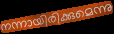
നന്നായിരിക്കുമെന്നു